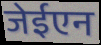
जेईएन